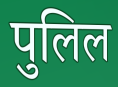
पुलिल